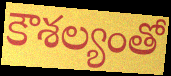
కౌశల్యంతో